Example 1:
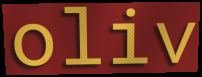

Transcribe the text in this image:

oliv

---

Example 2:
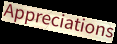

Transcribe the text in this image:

Appreciations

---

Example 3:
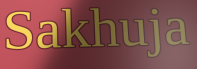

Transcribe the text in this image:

Sakhuja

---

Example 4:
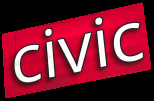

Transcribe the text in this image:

civic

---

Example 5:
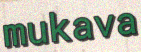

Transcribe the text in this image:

mukava